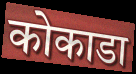
कोकाडा